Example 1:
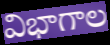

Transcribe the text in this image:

విభాగాల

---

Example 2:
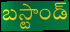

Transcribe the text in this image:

బస్టాండ్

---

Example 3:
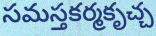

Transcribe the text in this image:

సమస్తకర్మకృచ్చ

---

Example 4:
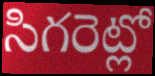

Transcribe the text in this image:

సిగరెట్లో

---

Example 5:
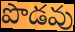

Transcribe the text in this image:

పొడవు